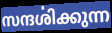
സന്ദൎശിക്കുന്ന